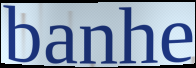
banhe